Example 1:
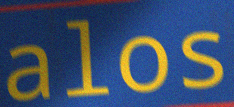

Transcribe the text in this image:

alos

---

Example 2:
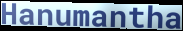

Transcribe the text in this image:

Hanumantha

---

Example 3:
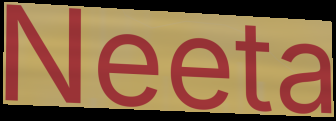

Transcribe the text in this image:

Neeta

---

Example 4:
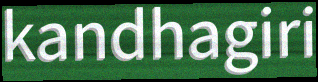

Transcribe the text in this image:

kandhagiri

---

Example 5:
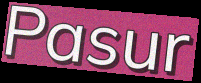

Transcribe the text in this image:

Pasur